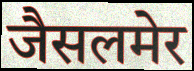
जैसलमेर